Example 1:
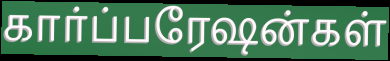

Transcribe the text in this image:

கார்ப்பரேஷன்கள்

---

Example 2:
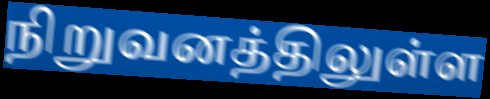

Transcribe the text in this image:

நிறுவனத்திலுள்ள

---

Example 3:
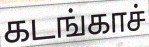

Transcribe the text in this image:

கடங்காச்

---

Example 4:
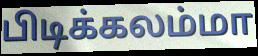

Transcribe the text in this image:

பிடிக்கலம்மா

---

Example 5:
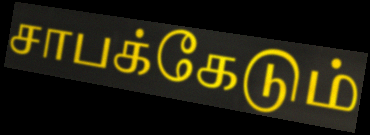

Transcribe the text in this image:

சாபக்கேடும்